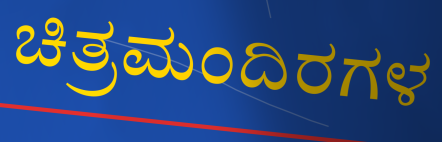
ಚಿತ್ರಮಂದಿರಗಳ